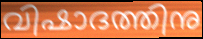
വിഷാദത്തിനു